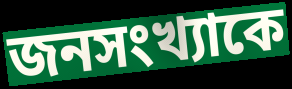
জনসংখ্যাকে